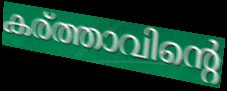
കര്ത്താവിന്റെ